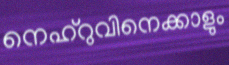
നെഹ്റുവിനെക്കാളും